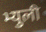
भ्युली